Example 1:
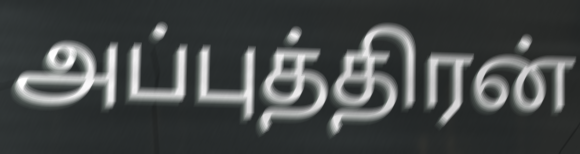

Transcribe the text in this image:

அப்புத்திரன்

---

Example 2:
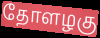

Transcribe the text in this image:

தோளழகு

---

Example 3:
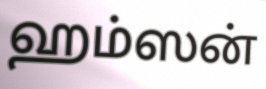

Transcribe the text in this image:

ஹம்ஸன்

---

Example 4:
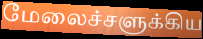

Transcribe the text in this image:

மேலைச்சளுக்கிய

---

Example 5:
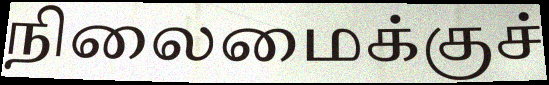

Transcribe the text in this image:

நிலைமைக்குச்